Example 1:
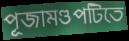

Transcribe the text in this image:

পূজামণ্ডপটিতে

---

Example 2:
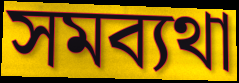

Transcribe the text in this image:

সমব্যথা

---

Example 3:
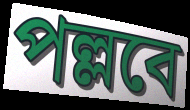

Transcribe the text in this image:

পল্লবে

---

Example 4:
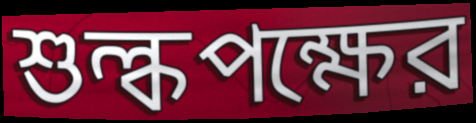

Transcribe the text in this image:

শুল্কপক্ষের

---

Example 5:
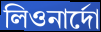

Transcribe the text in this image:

লিওনার্দো